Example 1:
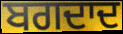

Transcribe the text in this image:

ਬਗਦਾਦ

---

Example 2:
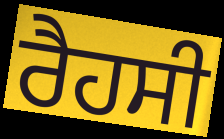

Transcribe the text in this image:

ਰੈਹਸੀ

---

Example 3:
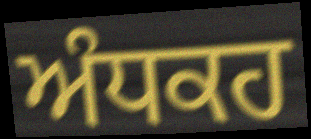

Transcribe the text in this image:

ਅੰਧਕਹ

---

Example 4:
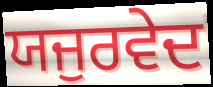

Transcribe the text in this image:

ਯਜੁਰਵੇਦ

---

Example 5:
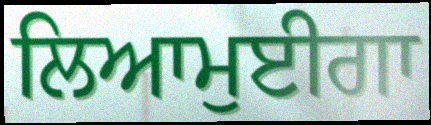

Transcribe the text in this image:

ਲਿਆਮੁਈਗਾ